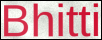
Bhitti